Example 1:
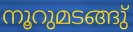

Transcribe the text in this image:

നൂറുമടങ്ങു്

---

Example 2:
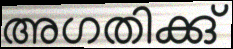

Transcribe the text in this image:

അഗതിക്കു്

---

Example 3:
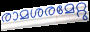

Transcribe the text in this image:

രാമശരമേറ്റു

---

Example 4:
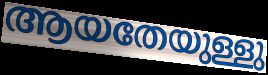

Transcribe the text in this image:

ആയതേയുള്ളു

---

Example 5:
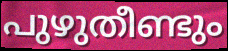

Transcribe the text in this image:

പുഴുതീണ്ടും